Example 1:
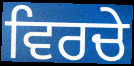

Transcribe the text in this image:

ਵਿਰਚੇ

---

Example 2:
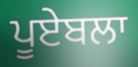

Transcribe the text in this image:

ਪੂਏਬਲਾ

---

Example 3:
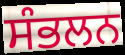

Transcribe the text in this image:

ਸੰਭਲਨ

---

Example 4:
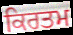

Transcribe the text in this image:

ਕਿਰਤਮ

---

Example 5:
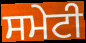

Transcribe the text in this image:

ਸਮੇਟੀ